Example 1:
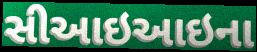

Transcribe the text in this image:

સીઆઇઆઇના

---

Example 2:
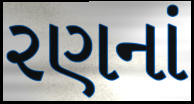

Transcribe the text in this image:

રણનાં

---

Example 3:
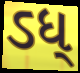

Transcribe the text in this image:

ઽધ્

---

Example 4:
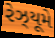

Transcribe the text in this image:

રેઝ્યૂમે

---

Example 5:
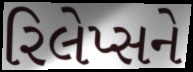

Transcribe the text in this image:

રિલેપ્સને